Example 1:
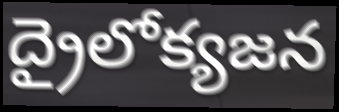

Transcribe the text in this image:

ద్రైలోక్యజన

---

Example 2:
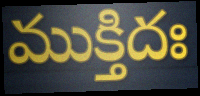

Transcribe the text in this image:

ముక్తిదః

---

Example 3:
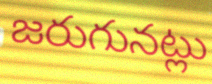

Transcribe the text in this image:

జరుగునట్లు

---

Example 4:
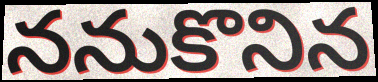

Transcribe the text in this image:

ననుకొనిన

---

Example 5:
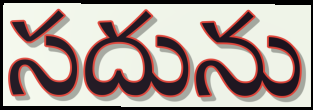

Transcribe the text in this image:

సదును